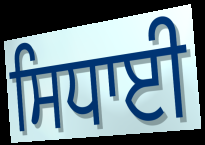
ਸਿਧਾਈ